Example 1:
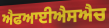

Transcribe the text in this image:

ਐਫਆਈਐਸਐਚ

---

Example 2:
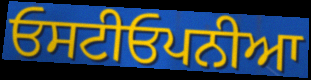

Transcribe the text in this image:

ਓਸਟੀਓਪਨੀਆ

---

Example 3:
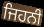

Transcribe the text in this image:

ਜਿਹਨੀ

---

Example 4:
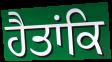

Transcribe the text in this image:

ਹੈਤਾਂਕਿ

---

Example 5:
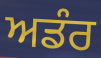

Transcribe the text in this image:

ਅਡੰਰ